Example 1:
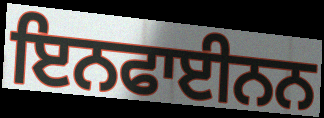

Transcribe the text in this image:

ਇਨਫਾਈਨਨ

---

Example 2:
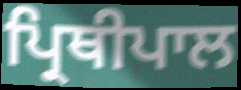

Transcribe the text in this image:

ਪ੍ਰਿਥੀਪਾਲ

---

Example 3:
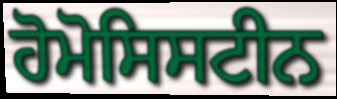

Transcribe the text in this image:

ਹੋਮੋਸਿਸਟੀਨ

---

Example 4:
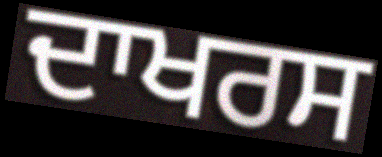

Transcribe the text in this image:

ਦਾਖਰਸ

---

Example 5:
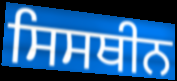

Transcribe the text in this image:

ਸਿਸਥੀਨ